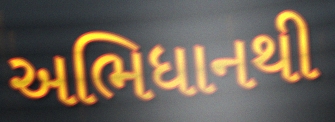
અભિધાનથી